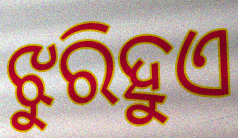
ଝୁରିହୁଏ